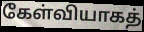
கேள்வியாகத்